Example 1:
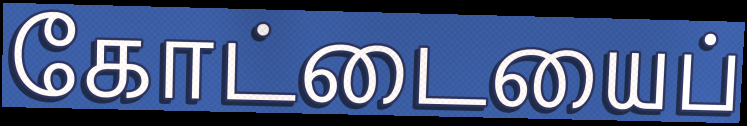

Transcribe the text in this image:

கோட்டையைப்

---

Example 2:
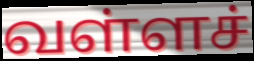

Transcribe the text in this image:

வள்ளச்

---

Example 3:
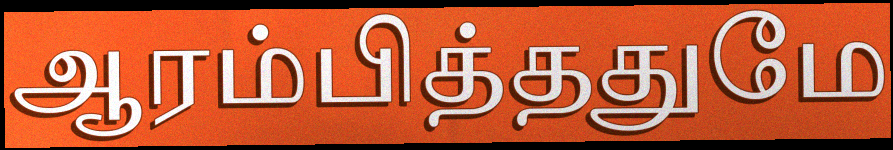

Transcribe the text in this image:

ஆரம்பித்ததுமே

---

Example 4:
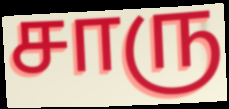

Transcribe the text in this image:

சாரு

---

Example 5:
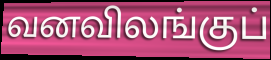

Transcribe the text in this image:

வனவிலங்குப்